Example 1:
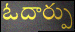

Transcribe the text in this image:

ఓదార్పు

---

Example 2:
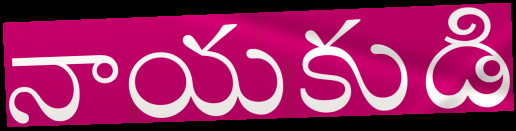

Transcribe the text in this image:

నాయకుడి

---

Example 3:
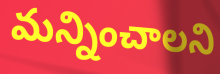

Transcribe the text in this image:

మన్నించాలని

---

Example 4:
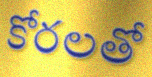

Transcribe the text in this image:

కోరలతో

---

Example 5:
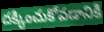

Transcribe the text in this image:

దక్కించుకోవడానికి